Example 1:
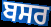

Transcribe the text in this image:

ਬਸਰ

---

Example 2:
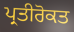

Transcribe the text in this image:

ਪ੍ਰਤੀਰੋਕਤ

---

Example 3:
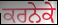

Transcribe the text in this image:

ਕਰਨੇਕੇ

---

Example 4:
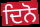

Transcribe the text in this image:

ਦਿਨੋ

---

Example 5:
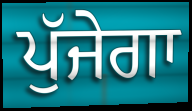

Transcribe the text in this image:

ਪੁੱਜੇਗਾ